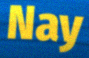
Nay